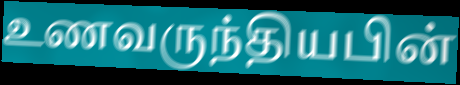
உணவருந்தியபின்